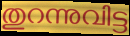
തുറന്നുവിട്ട